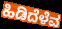
ಹಿಡಿದೆಳೆವ